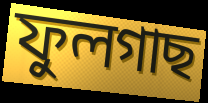
ফুলগাছ